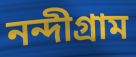
নন্দীগ্রাম